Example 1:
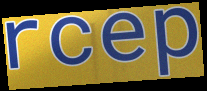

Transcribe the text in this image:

rcep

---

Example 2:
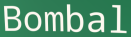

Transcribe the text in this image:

Bombal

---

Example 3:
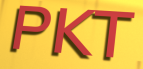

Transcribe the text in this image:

PKT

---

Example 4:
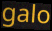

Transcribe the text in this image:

galo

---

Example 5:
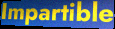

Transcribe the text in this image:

Impartible